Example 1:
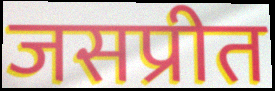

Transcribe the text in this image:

जसप्रीत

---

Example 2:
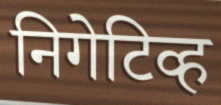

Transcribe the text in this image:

निगेटिव्ह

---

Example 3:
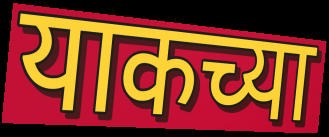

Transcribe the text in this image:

याकच्या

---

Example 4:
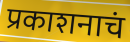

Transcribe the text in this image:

प्रकाशनाचं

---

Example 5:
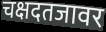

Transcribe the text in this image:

चक्षदतजावर